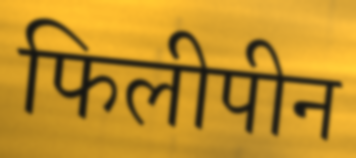
फिलीपीन